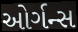
ઓર્ગન્સ